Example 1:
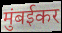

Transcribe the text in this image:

मुंबईकर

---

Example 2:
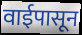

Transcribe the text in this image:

वाईपासून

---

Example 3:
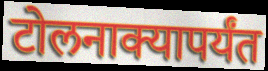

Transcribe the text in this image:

टोलनाक्यापर्यंत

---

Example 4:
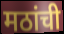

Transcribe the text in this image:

मठांची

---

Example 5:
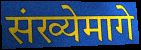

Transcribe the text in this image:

संख्येमागे